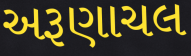
અરૂણાચલ